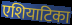
एशियाटिका